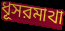
ধূসরমাথা